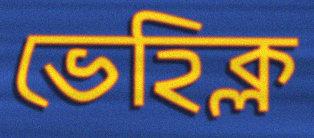
ভেহিক্ল